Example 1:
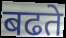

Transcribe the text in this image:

बढते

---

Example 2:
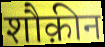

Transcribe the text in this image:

शौक़ीन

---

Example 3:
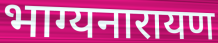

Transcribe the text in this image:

भाग्यनारायण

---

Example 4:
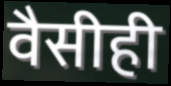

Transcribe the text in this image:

वैसीही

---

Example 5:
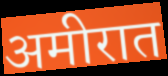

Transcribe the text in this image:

अमीरात